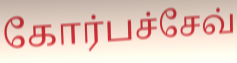
கோர்பச்சேவ்